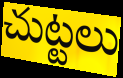
చుట్టలు